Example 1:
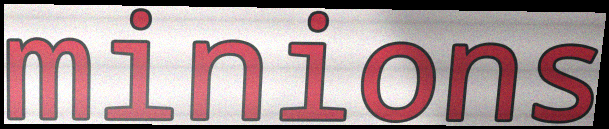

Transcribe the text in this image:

minions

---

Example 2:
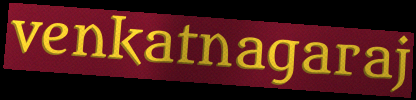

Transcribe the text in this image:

venkatnagaraj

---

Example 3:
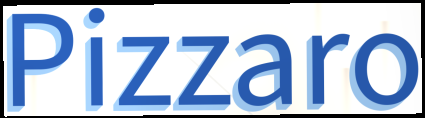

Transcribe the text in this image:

Pizzaro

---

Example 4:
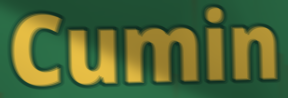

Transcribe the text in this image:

Cumin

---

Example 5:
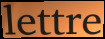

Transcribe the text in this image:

lettre